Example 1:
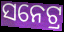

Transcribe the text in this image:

ସନେଟ୍ର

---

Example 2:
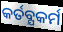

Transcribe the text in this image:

କର୍ତବ୍ଯକର୍ମ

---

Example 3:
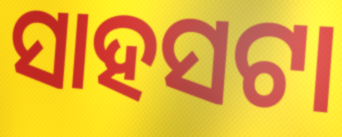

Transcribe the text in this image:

ସାହସଟା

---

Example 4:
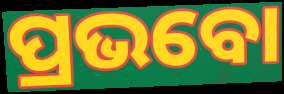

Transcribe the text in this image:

ପ୍ରଭବୋ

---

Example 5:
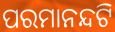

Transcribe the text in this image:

ପରମାନନ୍ଦଟି